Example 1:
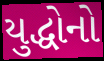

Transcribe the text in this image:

યુદ્ધોનો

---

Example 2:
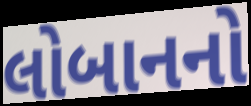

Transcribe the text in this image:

લોબાનનો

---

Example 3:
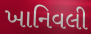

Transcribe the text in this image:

ખાનિવલી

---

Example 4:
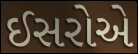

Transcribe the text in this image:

ઈસરોએ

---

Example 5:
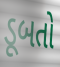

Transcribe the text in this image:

ડૂબતો